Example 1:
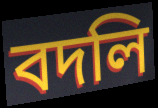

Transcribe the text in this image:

বদলি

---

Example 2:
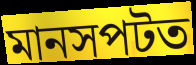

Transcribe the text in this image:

মানসপটত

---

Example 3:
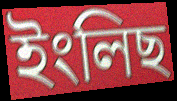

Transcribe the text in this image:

ইংলিছ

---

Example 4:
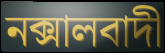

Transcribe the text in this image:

নক্সালবাদী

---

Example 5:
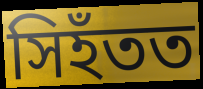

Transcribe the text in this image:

সিহঁতত